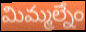
మిమ్మల్నేం